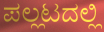
ಪಲ್ಲಟದಲ್ಲಿ